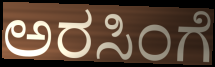
ಅರಸಿಂಗೆ